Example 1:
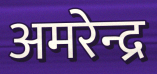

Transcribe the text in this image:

अमरेन्द्र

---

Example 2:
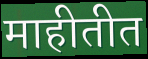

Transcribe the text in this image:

माहीतीत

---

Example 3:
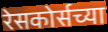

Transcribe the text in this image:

रेसकोर्सच्या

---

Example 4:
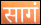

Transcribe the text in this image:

सागं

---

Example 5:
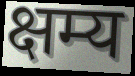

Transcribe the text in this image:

क्षम्य